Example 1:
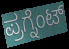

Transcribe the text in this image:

ಪ್ರಗ್ನೆಂಟ್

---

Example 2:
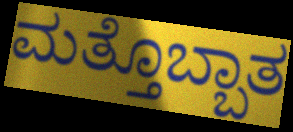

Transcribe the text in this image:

ಮತ್ತೊಬ್ಬಾತ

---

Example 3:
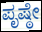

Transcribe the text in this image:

ಪೃಷ್ಠೇ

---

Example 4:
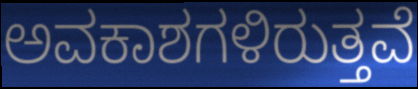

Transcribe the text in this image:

ಅವಕಾಶಗಳಿರುತ್ತವೆ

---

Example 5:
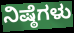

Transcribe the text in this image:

ನಿಷ್ಠೆಗಳು